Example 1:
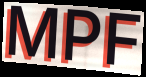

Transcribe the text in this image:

MPF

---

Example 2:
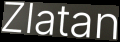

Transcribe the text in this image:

Zlatan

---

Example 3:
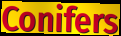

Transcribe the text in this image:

Conifers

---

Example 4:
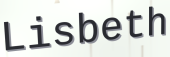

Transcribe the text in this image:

Lisbeth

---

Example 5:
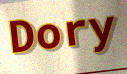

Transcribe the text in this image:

Dory